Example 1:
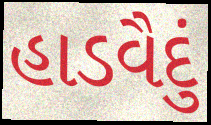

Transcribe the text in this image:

હાડવૈદું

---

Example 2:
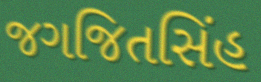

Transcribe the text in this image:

જગજિતસિંહ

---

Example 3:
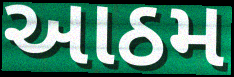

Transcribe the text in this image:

આઠમ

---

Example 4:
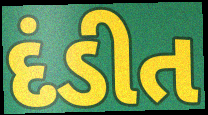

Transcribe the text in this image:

દંડીત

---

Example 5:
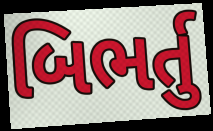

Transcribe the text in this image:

બિભર્તુ